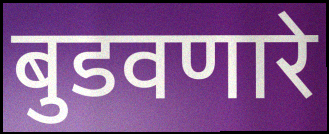
बुडवणारे